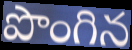
పొంగిన